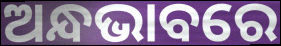
ଅନ୍ଧଭାବରେ